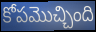
కోపమొచ్చింది